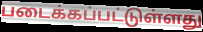
படைக்கப்பட்டுள்ளது